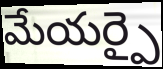
మేయర్పై